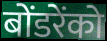
बोंडरेंको